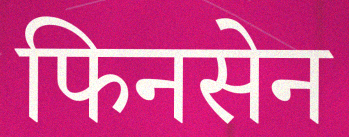
फिनसेन